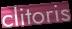
clitoris